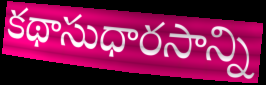
కథాసుధారసాన్ని